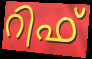
റിഫ്